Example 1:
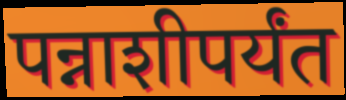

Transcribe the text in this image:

पन्नाशीपर्यंत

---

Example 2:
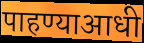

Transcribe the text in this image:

पाहण्याआधी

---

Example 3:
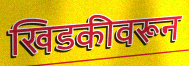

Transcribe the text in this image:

खिडकीवरून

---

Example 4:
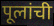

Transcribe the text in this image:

पूलांची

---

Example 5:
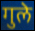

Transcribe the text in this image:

गुले